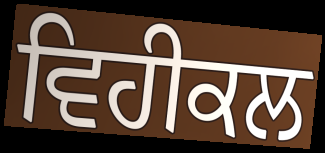
ਵਿਹੀਕਲ